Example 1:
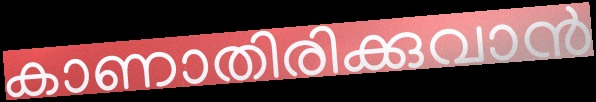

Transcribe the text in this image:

കാണാതിരിക്കുവാൻ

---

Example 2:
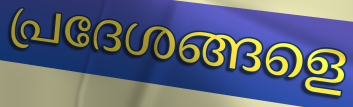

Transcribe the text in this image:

പ്രദേശങ്ങളെ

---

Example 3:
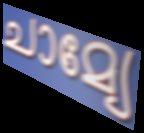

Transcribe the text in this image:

ചാമ്യേ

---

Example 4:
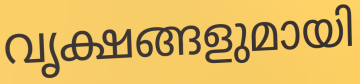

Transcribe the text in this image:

വൃക്ഷങ്ങളുമായി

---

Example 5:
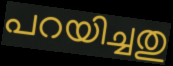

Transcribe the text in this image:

പറയിച്ചതു